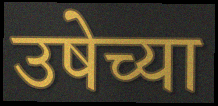
उषेच्या